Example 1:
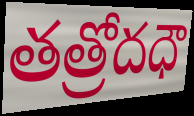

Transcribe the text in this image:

తత్రోదధౌ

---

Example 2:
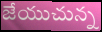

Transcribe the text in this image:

జేయుచున్న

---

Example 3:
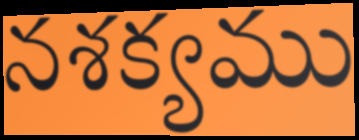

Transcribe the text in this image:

నశక్యము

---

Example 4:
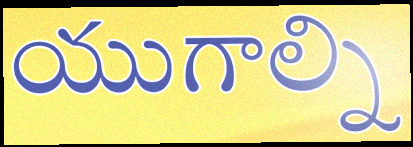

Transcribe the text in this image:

యుగాల్ని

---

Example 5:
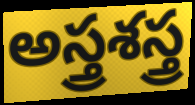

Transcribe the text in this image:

అస్త్రశస్త్ర